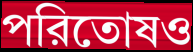
পরিতোষও